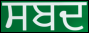
ਸਬਦ